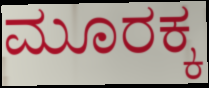
ಮೂರಕ್ಕ